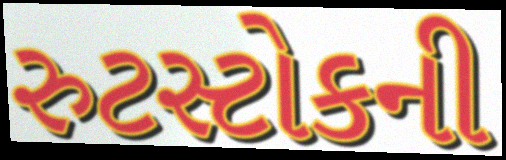
રુટસ્ટોકની